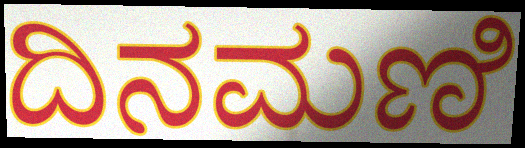
ದಿನಮಣಿ